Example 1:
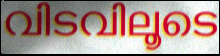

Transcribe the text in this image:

വിടവിലൂടെ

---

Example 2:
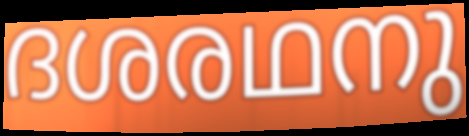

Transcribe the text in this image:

ദശരഥനു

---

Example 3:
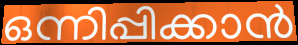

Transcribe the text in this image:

ഒന്നിപ്പിക്കാൻ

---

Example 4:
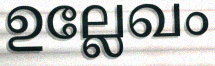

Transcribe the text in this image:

ഉല്ലേഖം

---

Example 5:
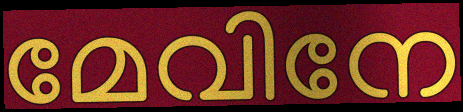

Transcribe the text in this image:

മേവിനേ